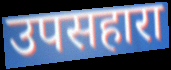
उपसहारा